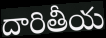
దారితీయ